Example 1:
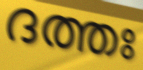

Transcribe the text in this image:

ദത്തഃ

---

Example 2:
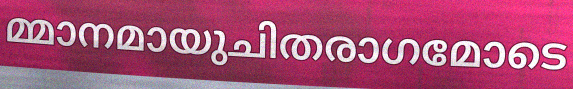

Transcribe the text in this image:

മ്മാനമായുചിതരാഗമോടെ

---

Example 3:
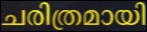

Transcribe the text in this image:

ചരിത്രമായി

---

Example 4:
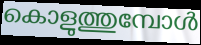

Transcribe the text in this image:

കൊളുത്തുമ്പോൾ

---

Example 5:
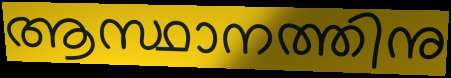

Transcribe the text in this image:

ആസ്ഥാനത്തിനു